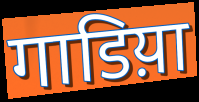
गाडिय़ा